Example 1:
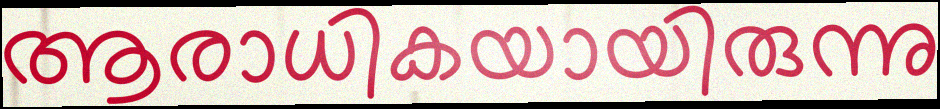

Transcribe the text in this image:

ആരാധികയായിരുന്നു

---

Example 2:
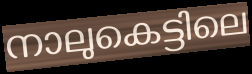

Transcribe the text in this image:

നാലുകെട്ടിലെ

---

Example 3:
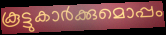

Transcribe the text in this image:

കൂട്ടുകാർക്കുമൊപ്പം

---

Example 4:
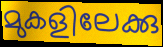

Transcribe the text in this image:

മുകളിലേക്കു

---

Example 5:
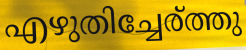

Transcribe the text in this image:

എഴുതിച്ചേര്ത്തു